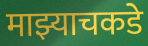
माझ्याचकडे